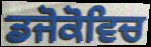
ਡਜੋਕੋਵਿਚ